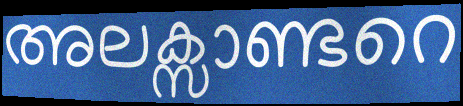
അലക്സാണ്ടറെ